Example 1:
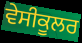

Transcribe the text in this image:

ਵੇਸੀਕੂਲਰ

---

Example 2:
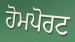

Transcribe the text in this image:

ਹੋਮਪੋਰਟ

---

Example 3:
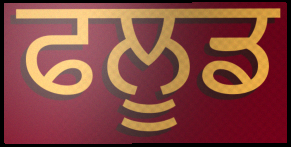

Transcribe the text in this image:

ਫਲੂਡ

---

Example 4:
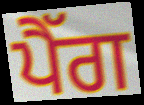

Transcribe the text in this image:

ਪੈੱਗ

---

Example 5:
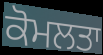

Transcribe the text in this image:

ਕੋਮਲਤਾ